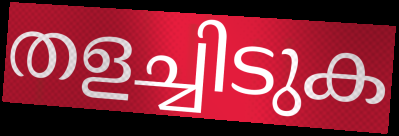
തളച്ചിടുക